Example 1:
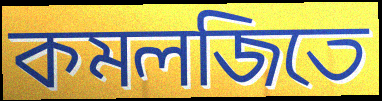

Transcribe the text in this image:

কমলজিতে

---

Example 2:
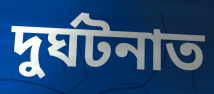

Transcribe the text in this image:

দুৰ্ঘটনাত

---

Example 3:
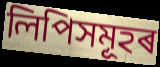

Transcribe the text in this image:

লিপিসমূহৰ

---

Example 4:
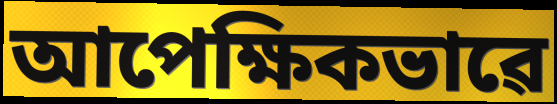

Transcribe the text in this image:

আপেক্ষিকভাৱে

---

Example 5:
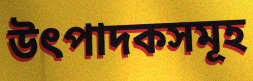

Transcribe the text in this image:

উৎপাদকসমূহ